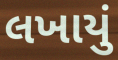
લખાયું